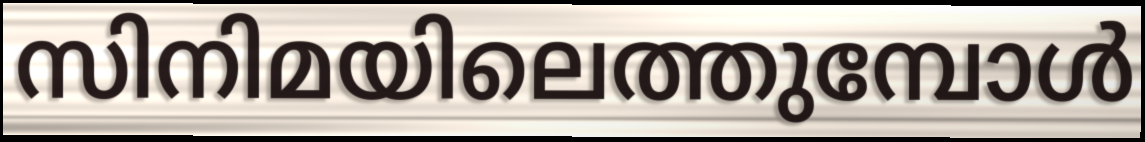
സിനിമയിലെത്തുമ്പോൾ